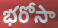
భరోసా